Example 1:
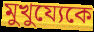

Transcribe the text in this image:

মুখুয্যেকে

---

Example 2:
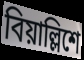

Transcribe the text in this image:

বিয়াল্লিশে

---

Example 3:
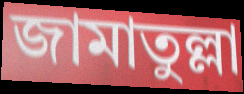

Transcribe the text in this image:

জামাতুল্লা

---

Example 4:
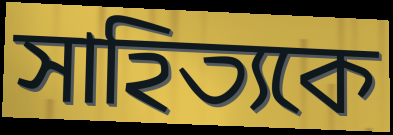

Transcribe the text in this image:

সাহিত্যকে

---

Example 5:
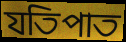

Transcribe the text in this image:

যতিপাত